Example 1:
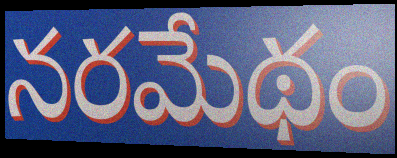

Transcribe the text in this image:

నరమేథం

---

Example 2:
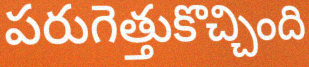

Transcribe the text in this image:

పరుగెత్తుకొచ్చింది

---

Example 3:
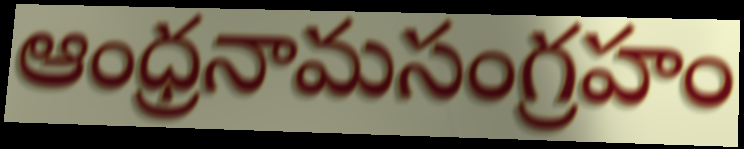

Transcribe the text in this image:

ఆంధ్రనామసంగ్రహం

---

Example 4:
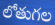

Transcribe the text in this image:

లోతుగల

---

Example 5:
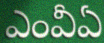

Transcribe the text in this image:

ఎంవీఏ